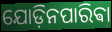
ଯୋଡ଼ିନପାରିଵା